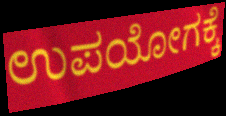
ಉಪಯೋಗಕ್ಕೆ